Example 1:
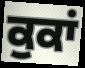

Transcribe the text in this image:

ਕੁਕਾਂ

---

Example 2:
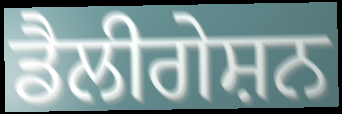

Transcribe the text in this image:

ਡੈਲੀਗੇਸ਼ਨ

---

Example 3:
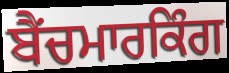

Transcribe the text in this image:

ਬੈਂਚਮਾਰਕਿੰਗ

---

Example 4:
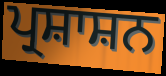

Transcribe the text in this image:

ਪ੍ਰਸ਼ਾਸ਼ਨ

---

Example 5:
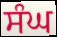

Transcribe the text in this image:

ਸੰਘ